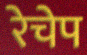
रेचेप